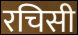
रचिसी